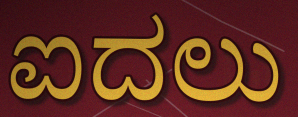
ಐದಲು